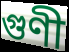
গুণী